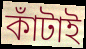
কাঁটাই